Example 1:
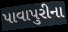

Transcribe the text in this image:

પાવાપુરીના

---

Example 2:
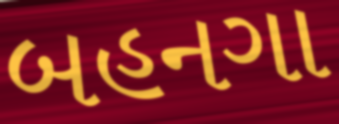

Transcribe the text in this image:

બહનગા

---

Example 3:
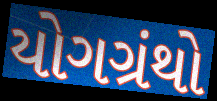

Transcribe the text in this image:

યોગગ્રંથો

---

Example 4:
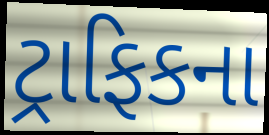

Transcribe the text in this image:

ટ્રાફિકના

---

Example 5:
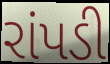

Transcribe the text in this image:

રાંપડી